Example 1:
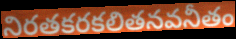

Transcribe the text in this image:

నిరతకరకలితనవనీతం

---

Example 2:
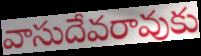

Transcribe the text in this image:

వాసుదేవరావుకు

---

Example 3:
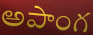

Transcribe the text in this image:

అపాంగ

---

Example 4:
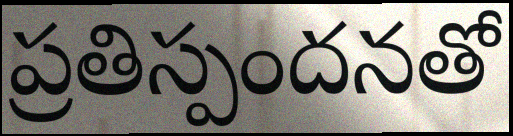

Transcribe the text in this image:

ప్రతిస్పందనతో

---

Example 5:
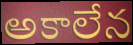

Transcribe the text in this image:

అకాలేన